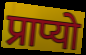
प्राप्यो